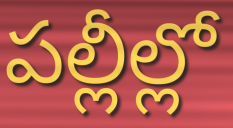
పల్లీల్లో